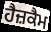
ਹੈਜ਼ਕੈਮ